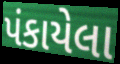
પંકાયેલા